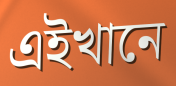
এইখানে